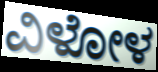
ವಿಳೋಳ